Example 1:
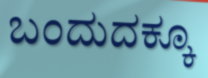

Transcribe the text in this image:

ಬಂದುದಕ್ಕೂ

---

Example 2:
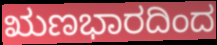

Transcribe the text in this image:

ಋಣಭಾರದಿಂದ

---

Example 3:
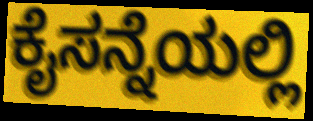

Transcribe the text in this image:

ಕೈಸನ್ನೆಯಲ್ಲಿ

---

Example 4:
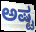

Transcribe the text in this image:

ಅಷ್ಟ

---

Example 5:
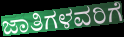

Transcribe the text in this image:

ಜಾತಿಗಳವರಿಗೆ